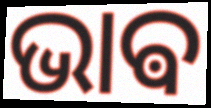
ଭାଵ